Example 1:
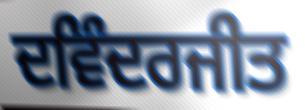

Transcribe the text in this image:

ਦਵਿੰਦਰਜੀਤ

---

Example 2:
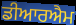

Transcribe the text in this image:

ਡੀਆਰਐਮ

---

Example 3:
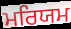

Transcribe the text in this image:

ਮਰਿਯਮ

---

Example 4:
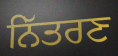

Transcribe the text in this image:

ਨਿੱਤਰਣ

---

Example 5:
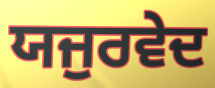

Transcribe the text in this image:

ਯਜੁਰਵੇਦ